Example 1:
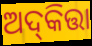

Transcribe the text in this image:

ଅଦ୍‌କିତ୍ତା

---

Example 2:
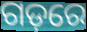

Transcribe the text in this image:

ଗଡ଼ରେ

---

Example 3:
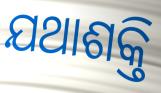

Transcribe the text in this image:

ଯଥାଶକ୍ତି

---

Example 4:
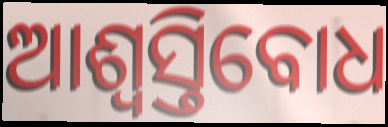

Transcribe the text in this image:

ଆଶ୍ଵସ୍ତିବୋଧ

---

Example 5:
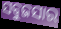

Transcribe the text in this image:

ସବୁଜସାର